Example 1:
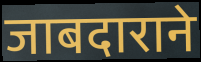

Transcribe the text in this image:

जाबदाराने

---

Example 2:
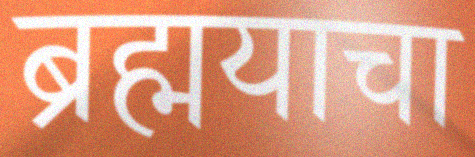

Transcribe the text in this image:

ब्रह्मयाचा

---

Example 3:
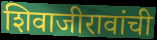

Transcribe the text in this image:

शिवाजीरावांची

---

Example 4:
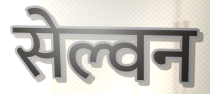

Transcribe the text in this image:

सेल्वन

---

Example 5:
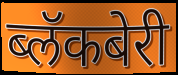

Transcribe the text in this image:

ब्लॅकबेरी